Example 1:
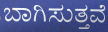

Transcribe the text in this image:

ಬಾಗಿಸುತ್ತವೆ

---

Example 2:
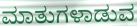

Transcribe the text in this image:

ಮಾತುಗಳಾಡುವ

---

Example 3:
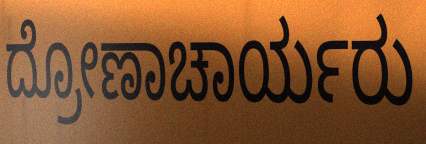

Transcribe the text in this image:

ದ್ರೋಣಾಚಾರ್ಯರು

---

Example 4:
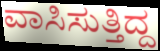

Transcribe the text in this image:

ವಾಸಿಸುತ್ತಿದ್ದ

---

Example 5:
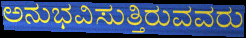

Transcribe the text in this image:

ಅನುಭವಿಸುತ್ತಿರುವವರು